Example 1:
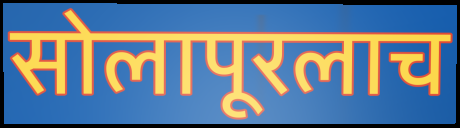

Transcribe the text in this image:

सोलापूरलाच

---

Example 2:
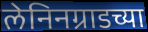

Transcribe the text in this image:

लेनिनग्राडच्या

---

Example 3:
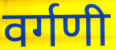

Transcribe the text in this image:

वर्गणी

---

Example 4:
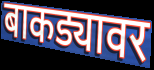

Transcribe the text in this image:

बाकड्यावर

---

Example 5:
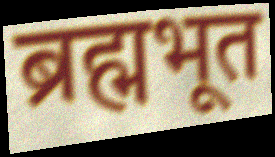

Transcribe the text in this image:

ब्रह्मभूत